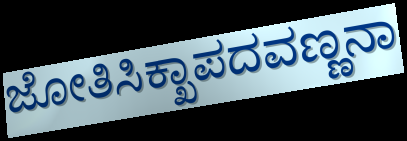
ಜೋತಿಸಿಕ್ಖಾಪದವಣ್ಣನಾ